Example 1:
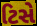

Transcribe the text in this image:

ટિસે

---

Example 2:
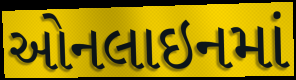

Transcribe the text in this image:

ઓનલાઇનમાં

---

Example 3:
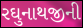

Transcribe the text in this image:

રઘુનાથજીની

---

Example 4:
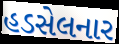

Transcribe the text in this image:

હડસેલનાર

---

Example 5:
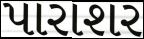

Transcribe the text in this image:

પારાશર